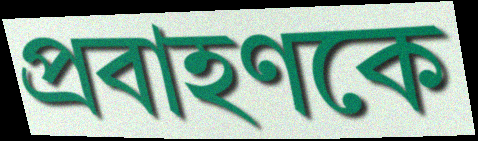
প্রবাহণকে